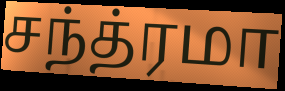
சந்த்ரமா